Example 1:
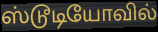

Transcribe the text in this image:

ஸ்டூடியோவில்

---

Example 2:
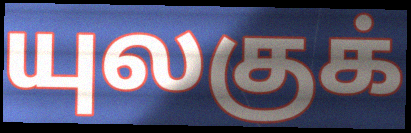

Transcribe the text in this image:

யுலகுக்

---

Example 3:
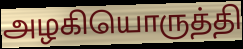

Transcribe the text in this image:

அழகியொருத்தி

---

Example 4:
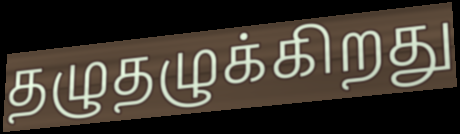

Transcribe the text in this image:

தழுதழுக்கிறது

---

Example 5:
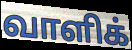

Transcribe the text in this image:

வாளிக்